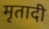
मृतादी